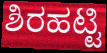
ಶಿರಹಟ್ಟಿ